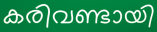
കരിവണ്ടായി